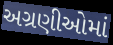
અગ્રણીઓમાં